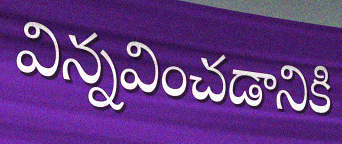
విన్నవించడానికి